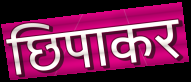
छिपाकर